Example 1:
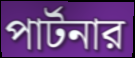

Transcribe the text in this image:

পার্টনার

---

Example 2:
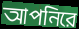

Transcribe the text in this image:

আপনিরে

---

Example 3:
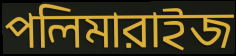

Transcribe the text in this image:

পলিমারাইজ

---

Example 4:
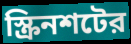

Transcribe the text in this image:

স্ক্রিনশটের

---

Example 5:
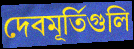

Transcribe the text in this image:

দেবমূর্তিগুলি